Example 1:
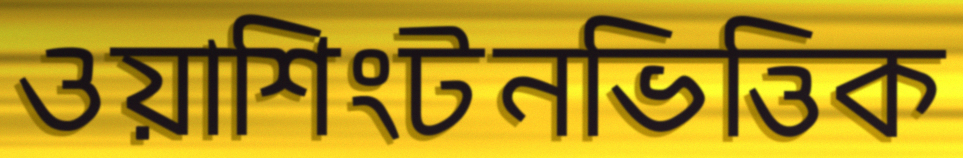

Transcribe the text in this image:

ওয়াশিংটনভিত্তিক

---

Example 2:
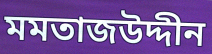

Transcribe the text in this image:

মমতাজউদ্দীন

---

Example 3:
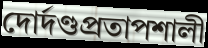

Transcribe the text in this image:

দোর্দণ্ডপ্রতাপশালী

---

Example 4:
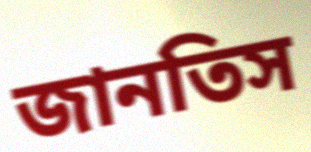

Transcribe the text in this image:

জানতিস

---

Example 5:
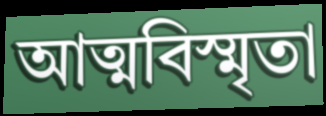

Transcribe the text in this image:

আত্মবিস্মৃতা